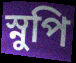
স্নুপি